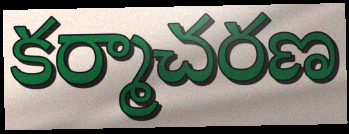
కర్మాచరణ